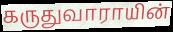
கருதுவாராயின்